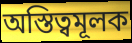
অস্তিত্বমূলক